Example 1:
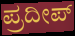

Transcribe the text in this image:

ಪ್ರದೀಪ್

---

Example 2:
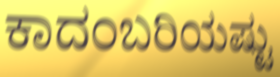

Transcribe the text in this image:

ಕಾದಂಬರಿಯಷ್ಟು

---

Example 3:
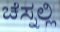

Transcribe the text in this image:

ಚೆಸ್ನಲ್ಲಿ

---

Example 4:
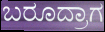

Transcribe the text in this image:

ಬರೂದ್ರಾಗ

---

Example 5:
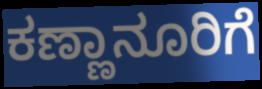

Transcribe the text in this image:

ಕಣ್ಣಾನೂರಿಗೆ